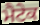
ਮੈਟੇਕ